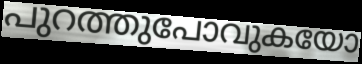
പുറത്തുപോവുകയോ